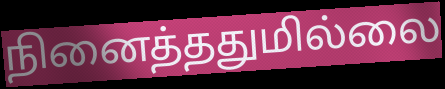
நினைத்ததுமில்லை